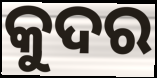
କୁଦର